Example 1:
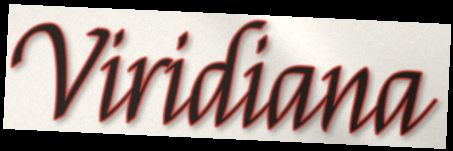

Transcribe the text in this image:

Viridiana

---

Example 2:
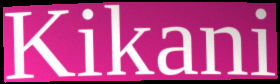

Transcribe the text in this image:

Kikani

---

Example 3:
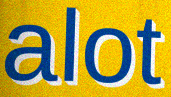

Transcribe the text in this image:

alot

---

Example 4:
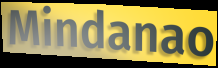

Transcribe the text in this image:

Mindanao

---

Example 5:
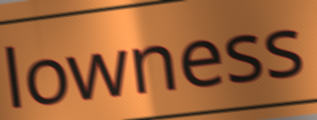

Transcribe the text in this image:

lowness